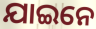
ଯାଇନେ